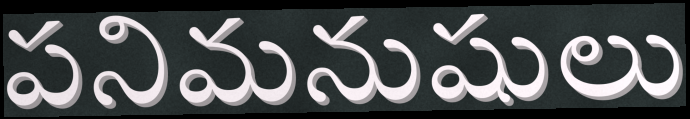
పనిమనుషులు